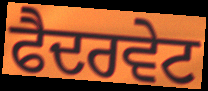
ਫੈਦਰਵੇਟ